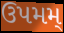
ઉપમમ્